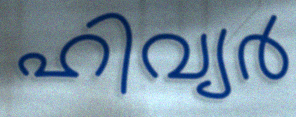
ഹിവ്യർ